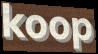
koop